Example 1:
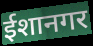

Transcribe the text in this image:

ईशानगर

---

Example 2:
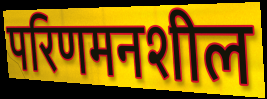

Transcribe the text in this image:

परिणमनशील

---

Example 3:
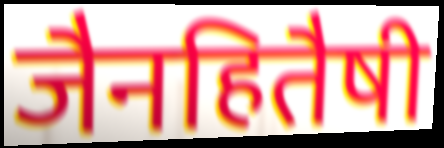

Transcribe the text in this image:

जैनहितैषी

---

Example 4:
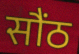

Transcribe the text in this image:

सौंठ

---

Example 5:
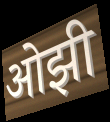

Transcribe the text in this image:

ओझी